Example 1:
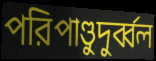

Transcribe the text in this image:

পরিপাণ্ডুদুর্ব্বল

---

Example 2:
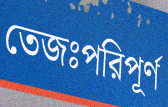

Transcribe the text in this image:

তেজঃপরিপূর্ণ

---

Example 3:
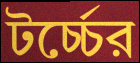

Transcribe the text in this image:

টর্চ্চের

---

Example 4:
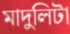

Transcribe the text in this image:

মাদুলিটা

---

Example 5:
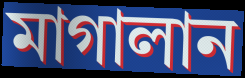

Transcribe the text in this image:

মাগালান